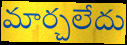
మార్చలేదు